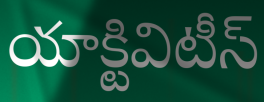
యాక్టివిటీస్